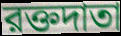
রক্তদাতা